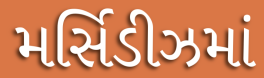
મર્સિડીઝમાં